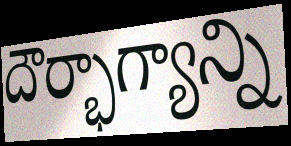
దౌర్భాగ్యాన్ని